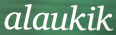
alaukik